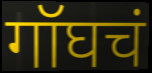
गॉघचं